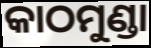
କାଠମୁଣ୍ଡା